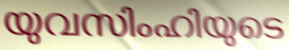
യുവസിംഹിയുടെ